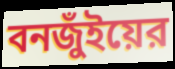
বনজুঁইয়ের